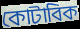
কোটাবিক